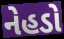
નેહડો